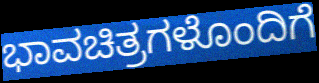
ಭಾವಚಿತ್ರಗಳೊಂದಿಗೆ